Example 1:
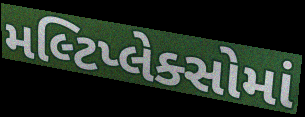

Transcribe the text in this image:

મલ્ટિપ્લેક્સોમાં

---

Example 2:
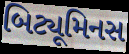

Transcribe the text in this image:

બિટ્યૂમિનસ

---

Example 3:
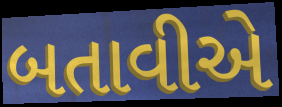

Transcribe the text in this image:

બતાવીએ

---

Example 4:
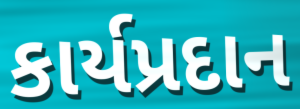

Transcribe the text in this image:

કાર્યપ્રદાન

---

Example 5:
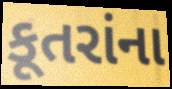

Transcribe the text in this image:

કૂતરાંના